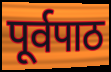
पूर्वपाठ